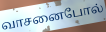
வாசனைபோல்